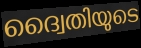
ദ്വൈതിയുടെ